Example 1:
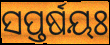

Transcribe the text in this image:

ସପ୍ତର୍ଷୟଃ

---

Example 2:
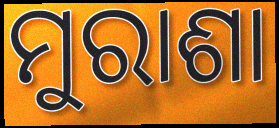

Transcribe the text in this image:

ମୁରାଶା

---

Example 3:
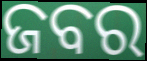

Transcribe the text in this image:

ଜବର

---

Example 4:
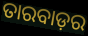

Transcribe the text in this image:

ତାରବାଡ଼ର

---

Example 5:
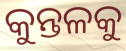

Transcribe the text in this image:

କୁନ୍ତଳକୁ